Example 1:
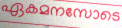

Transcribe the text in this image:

ഏകമനസോടെ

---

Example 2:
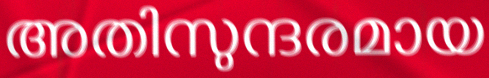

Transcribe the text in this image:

അതിസുന്ദരമായ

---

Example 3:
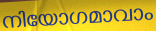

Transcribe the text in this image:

നിയോഗമാവാം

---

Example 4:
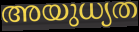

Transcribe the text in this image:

അയുധ്യത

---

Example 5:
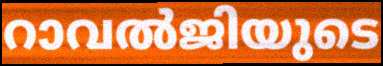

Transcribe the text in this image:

റാവൽജിയുടെ